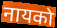
नायको